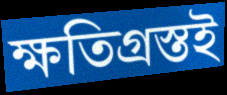
ক্ষতিগ্রস্তই